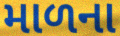
માળના